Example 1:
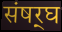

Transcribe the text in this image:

संषर्घ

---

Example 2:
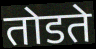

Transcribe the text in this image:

तोडते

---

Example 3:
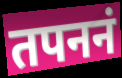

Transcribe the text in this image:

तपननं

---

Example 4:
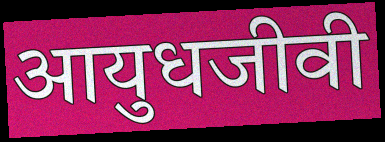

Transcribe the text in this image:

आयुधजीवी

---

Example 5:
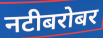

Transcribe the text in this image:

नटीबरोबर